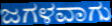
ಜಗಳವಾಗು